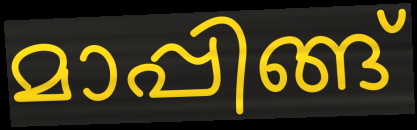
മാപ്പിങ്ങ്